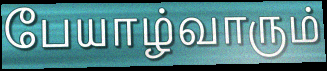
பேயாழ்வாரும்